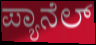
ಪ್ಯಾನೆಲ್